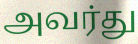
அவர்து